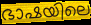
ഭാഷയിലെ